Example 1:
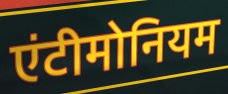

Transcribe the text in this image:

एंटीमोनियम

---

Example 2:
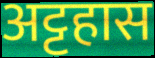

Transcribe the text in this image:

अट्टहास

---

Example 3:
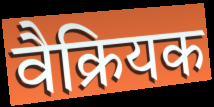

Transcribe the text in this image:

वैक्रियक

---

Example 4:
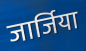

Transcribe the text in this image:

जार्जिया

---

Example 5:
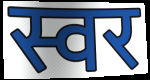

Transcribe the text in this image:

स्वर